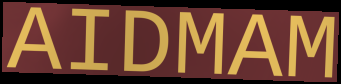
AIDMAM